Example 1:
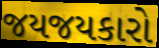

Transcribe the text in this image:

જયજયકારો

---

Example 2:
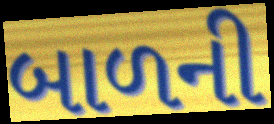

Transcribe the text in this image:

બાળની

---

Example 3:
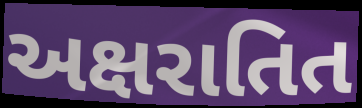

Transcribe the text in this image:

અક્ષરાતિત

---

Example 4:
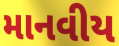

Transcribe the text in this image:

માનવીય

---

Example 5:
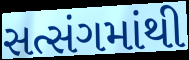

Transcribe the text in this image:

સત્સંગમાંથી